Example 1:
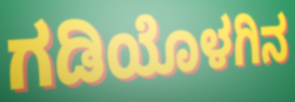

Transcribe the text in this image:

ಗಡಿಯೊಳಗಿನ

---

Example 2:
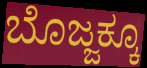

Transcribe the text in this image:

ಬೊಜ್ಜಕ್ಕೂ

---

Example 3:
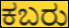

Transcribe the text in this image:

ಕಬರು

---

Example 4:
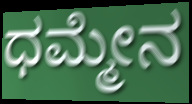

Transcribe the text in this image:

ಧಮ್ಮೇನ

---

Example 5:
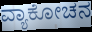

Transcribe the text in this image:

ವ್ಯಾಕೋಚನ